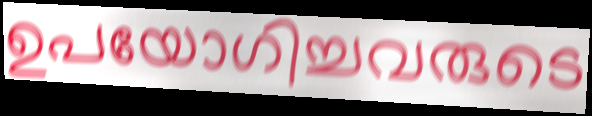
ഉപയോഗിച്ചവരുടെ